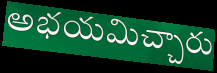
అభయమిచ్చారు